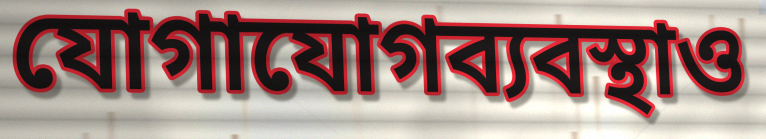
যোগাযোগব্যবস্থাও